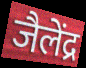
जैलेंद्र